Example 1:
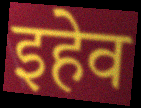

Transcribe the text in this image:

इहेव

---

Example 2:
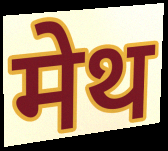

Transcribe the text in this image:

मेथ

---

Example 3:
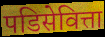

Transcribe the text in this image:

पडिसेवित्ता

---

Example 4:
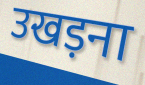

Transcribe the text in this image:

उखड़ना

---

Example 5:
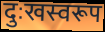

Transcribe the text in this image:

दुःखस्वरूप